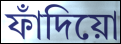
ফাঁদিয়ো